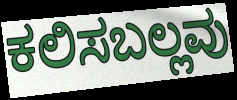
ಕಲಿಸಬಲ್ಲವು